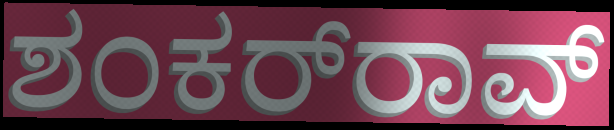
ಶಂಕರ್‌ರಾವ್